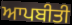
ਆਪਬੀਤੀ